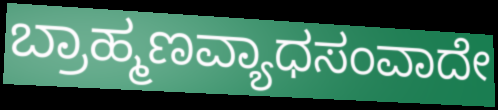
ಬ್ರಾಹ್ಮಣವ್ಯಾಧಸಂವಾದೇ